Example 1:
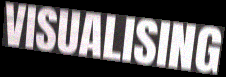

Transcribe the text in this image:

VISUALISING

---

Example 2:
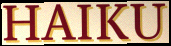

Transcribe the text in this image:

HAIKU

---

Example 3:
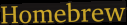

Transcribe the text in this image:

Homebrew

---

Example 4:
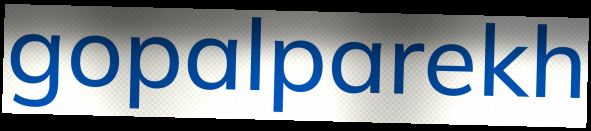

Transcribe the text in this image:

gopalparekh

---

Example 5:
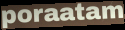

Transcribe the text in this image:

poraatam